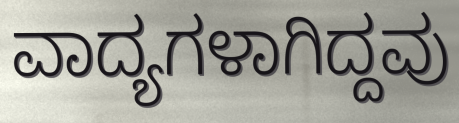
ವಾದ್ಯಗಳಾಗಿದ್ದವು